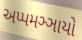
અપ્પમઞ્ઞાયો